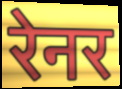
रेनर